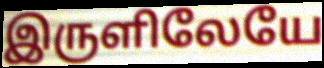
இருளிலேயே